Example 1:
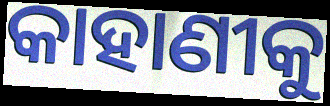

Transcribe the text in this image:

କାହାଣୀକୁ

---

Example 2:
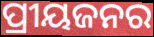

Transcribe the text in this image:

ପ୍ରୀୟଜନର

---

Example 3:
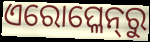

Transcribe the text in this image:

ଏରୋପ୍ଳେନ୍‍ରୁ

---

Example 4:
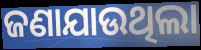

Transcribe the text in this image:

ଜଣାଯାଉଥିଲା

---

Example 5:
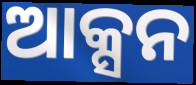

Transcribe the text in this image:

ଆକ୍ସନ